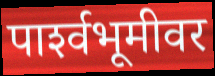
पार्श्‍वभूमीवर